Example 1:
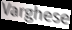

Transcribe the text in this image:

Varghese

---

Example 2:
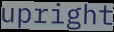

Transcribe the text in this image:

upright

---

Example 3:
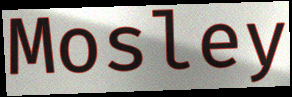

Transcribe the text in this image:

Mosley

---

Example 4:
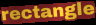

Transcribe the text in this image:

rectangle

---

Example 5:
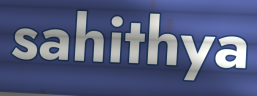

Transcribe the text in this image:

sahithya